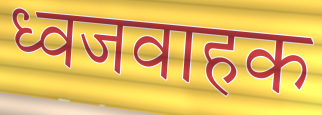
ध्वजवाहक